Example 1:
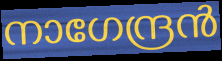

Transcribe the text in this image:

നാഗേന്ദ്രൻ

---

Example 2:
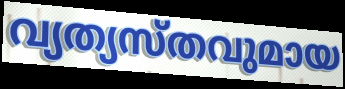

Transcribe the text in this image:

വ്യത്യസ്തവുമായ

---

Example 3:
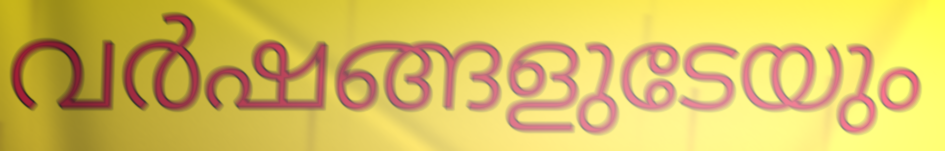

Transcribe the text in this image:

വർഷങ്ങളുടേയും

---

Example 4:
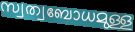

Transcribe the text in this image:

സ്വത്വബോധമുള്ള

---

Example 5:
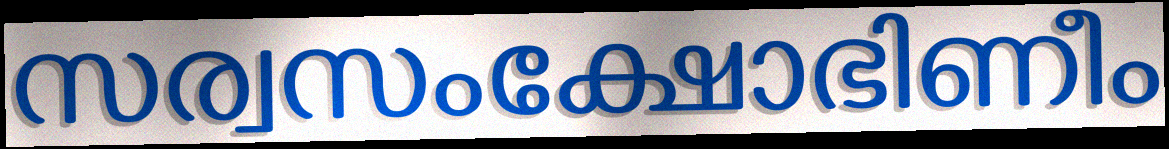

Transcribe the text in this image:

സര്വസംക്ഷോഭിണീം